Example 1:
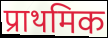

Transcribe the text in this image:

प्राथमिक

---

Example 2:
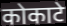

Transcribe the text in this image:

कोकाटे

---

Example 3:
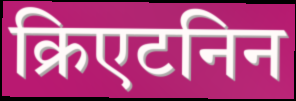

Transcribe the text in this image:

क्रिएटनिन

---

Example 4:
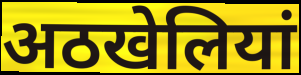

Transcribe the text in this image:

अठखेलियां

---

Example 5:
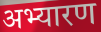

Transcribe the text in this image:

अभ्यारण